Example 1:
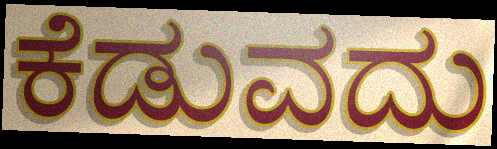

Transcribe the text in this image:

ಕೆಡುವದು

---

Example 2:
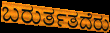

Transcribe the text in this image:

ಬರುರ್ತತದೆರು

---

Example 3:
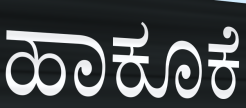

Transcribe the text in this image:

ಹಾಕೂಕೆ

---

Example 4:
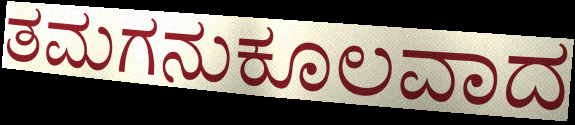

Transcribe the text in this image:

ತಮಗನುಕೂಲವಾದ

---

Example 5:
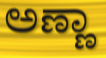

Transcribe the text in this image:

ಅಣ್ಣಾ